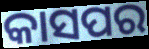
କାସପର